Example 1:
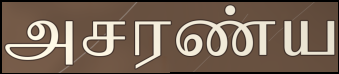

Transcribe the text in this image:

அசரண்ய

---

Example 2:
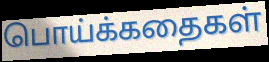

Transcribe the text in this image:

பொய்க்கதைகள்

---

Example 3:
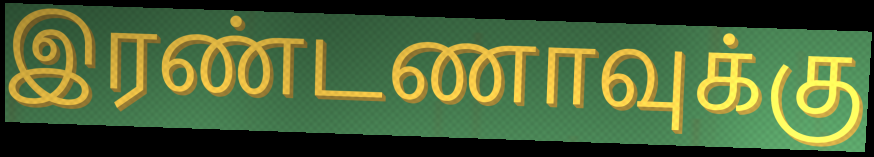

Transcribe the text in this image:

இரண்டணாவுக்கு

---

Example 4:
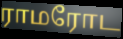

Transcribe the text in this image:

ராமரோட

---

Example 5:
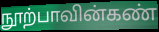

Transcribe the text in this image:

நூற்பாவின்கண்